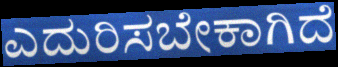
ಎದುರಿಸಬೇಕಾಗಿದೆ